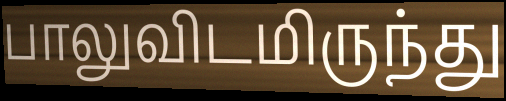
பாலுவிடமிருந்து